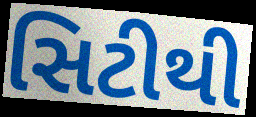
સિટીથી